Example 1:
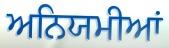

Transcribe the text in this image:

ਅਨਿਯਮੀਆਂ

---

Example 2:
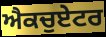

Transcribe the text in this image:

ਐਕਚੁਏਟਰ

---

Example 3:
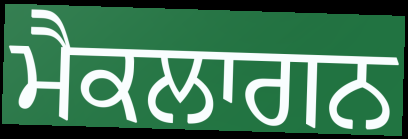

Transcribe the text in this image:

ਮੈਕਲਾਗਨ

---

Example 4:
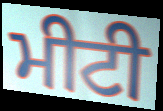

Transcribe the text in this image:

ਮੀਟੀ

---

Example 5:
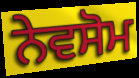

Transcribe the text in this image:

ਨੇਵਸੋਮ